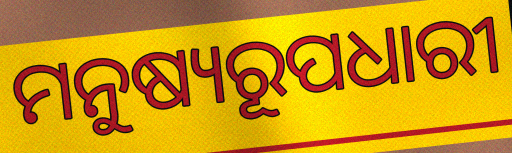
ମନୁଷ୍ୟରୂପଧାରୀ